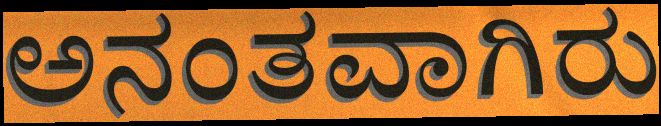
ಅನಂತವಾಗಿರು